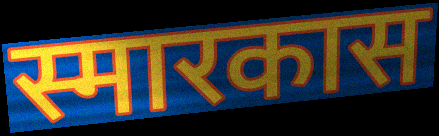
स्मारकास